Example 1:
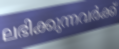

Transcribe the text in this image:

ലഭിക്കുന്നവർക്ക്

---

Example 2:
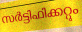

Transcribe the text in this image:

സർട്ടിഫിക്കറ്റും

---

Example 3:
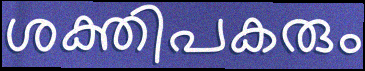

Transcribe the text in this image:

ശക്തിപകരും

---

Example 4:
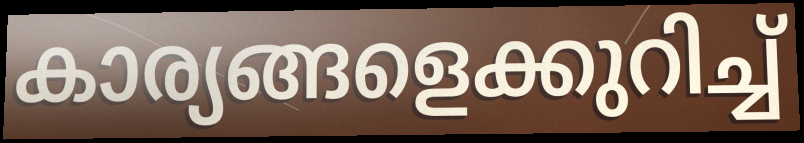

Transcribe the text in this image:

കാര്യങ്ങളെക്കുറിച്ച്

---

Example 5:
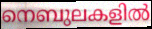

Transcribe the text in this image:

നെബുലകളിൽ